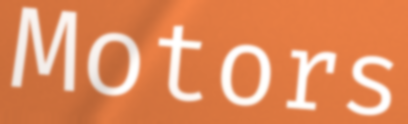
Motors